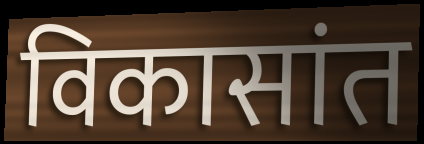
विकासांत